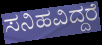
ಸನಿಹವಿದ್ದರೆ